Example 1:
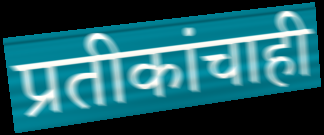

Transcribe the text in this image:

प्रतीकांचाही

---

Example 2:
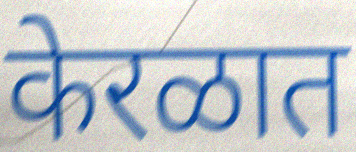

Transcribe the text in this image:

केरळात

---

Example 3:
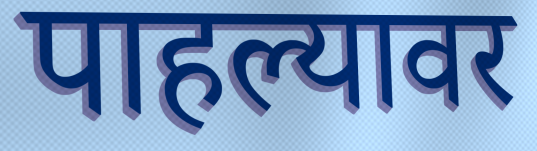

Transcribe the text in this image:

पाहल्यावर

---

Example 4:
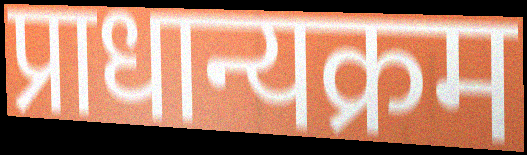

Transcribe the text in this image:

प्राधान्यक्रम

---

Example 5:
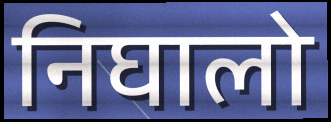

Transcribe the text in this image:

निघालो